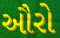
ઔરો